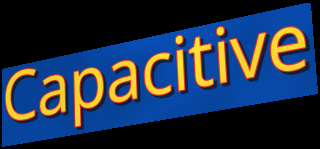
Capacitive